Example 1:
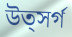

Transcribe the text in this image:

উত্সর্গ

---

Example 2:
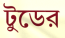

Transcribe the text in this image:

টুডের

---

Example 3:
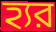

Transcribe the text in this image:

হ্যর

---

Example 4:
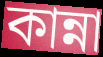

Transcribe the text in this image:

কান্না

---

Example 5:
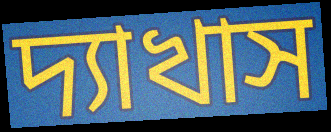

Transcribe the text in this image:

দ্যাখাস